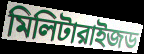
মিলিটারাইজড